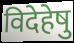
विदेहेषु